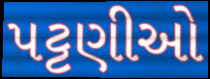
પટ્ટણીઓ